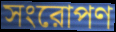
সংরোপণ